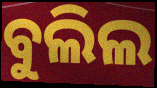
ବୁଲିଲ